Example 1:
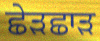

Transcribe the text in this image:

ਛੇੜਛਾੜ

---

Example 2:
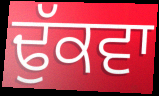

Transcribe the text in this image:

ਢੁੱਕਵਾ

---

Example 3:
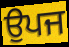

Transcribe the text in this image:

ਉਪਜ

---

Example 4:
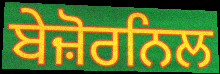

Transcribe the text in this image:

ਬੇਜ਼ੋਰਨਿਲ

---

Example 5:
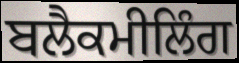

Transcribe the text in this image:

ਬਲੈਕਮੀਲਿੰਗ